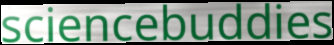
sciencebuddies